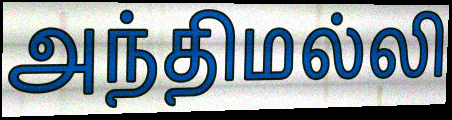
அந்திமல்லி